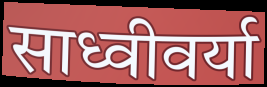
साध्वीवर्या